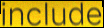
include